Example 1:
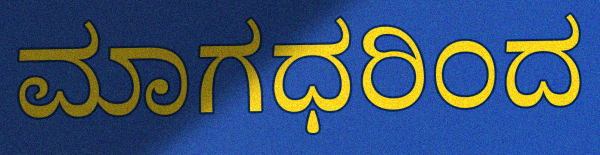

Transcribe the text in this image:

ಮಾಗಧರಿಂದ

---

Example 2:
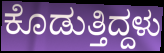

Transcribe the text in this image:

ಕೊಡುತ್ತಿದ್ದಳು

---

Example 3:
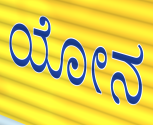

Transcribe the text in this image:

ಯೋನ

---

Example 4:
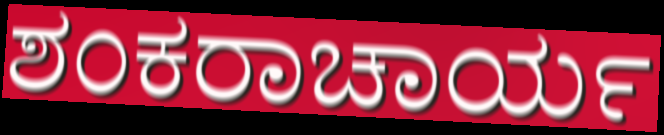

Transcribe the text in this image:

ಶಂಕರಾಚಾರ್ಯ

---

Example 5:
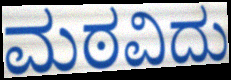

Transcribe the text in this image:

ಮಠವಿದು